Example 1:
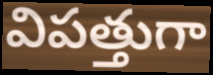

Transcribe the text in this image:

విపత్తుగా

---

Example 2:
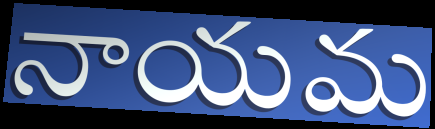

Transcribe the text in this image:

నాయమ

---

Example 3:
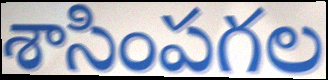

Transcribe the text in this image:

శాసింపగల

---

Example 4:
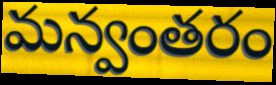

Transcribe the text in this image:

మన్వంతరం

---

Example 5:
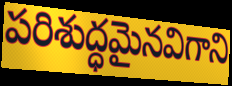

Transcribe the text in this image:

పరిశుద్ధమైనవిగాని